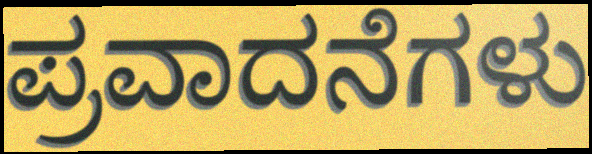
ಪ್ರವಾದನೆಗಳು